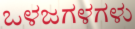
ಒಳಜಗಳಗಳು